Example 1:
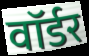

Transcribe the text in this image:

वॉर्डर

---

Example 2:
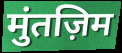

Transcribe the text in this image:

मुंतज़िम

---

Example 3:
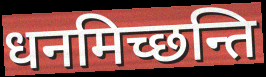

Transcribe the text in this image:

धनमिच्छन्ति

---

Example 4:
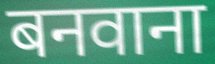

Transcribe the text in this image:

बनवाना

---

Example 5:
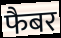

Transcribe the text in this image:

फैबर